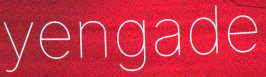
yengade